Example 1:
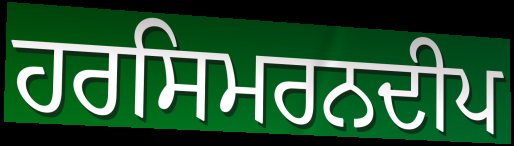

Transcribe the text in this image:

ਹਰਸਿਮਰਨਦੀਪ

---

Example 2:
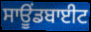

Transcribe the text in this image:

ਸਾਊਂਡਬਾਈਟ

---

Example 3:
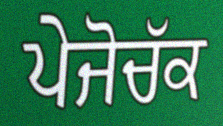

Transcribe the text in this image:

ਪੇਜੋਚੱਕ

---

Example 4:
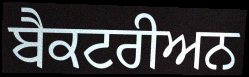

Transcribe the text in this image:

ਬੈਕਟਰੀਅਨ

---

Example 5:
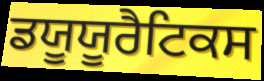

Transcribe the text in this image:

ਡਯੂਯੂਰੈਟਿਕਸ